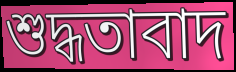
শুদ্ধতাবাদ